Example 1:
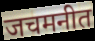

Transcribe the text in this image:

जचमनीत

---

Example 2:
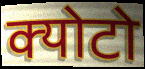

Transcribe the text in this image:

क्‍योटो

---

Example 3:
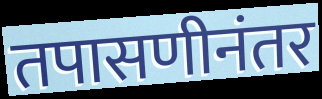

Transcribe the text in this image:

तपासणीनंतर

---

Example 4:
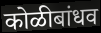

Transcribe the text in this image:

कोळीबांधव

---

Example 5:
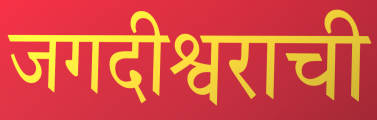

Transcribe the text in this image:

जगदीश्वराची